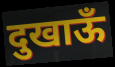
दुखाऊँ